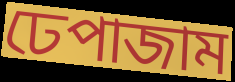
ঢেপাজাম